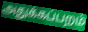
அதுக்கப்பறம்